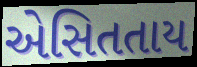
એસિતતાય